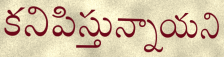
కనిపిస్తున్నాయని